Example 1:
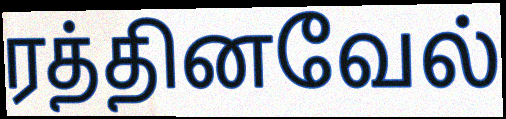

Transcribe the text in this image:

ரத்தினவேல்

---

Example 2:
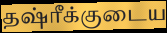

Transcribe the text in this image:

தஷ்ரீக்குடைய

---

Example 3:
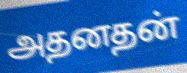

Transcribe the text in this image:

அதனதன்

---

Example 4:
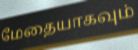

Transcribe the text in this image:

மேதையாகவும்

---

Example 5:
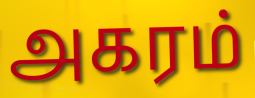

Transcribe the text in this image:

அகரம்